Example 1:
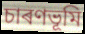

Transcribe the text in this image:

চাৰণভূমি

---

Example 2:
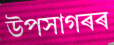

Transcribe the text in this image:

উপসাগৰৰ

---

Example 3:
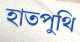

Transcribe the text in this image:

হাতপুথি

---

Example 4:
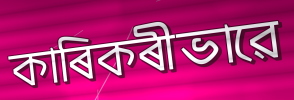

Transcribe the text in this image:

কাৰিকৰীভাৱে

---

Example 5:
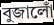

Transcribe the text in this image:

বুজালোঁ